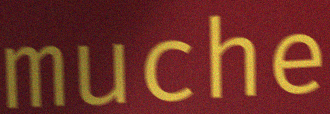
muche